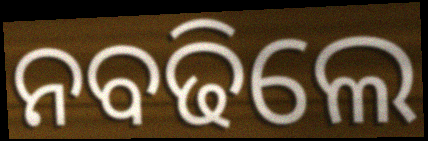
ନବଢିଲେ